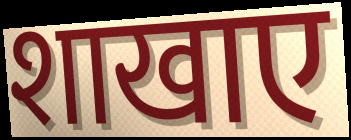
शाखाए